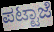
ಪಟ್ಟಾಜೆ